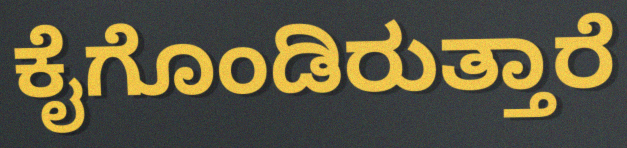
ಕೈಗೊಂಡಿರುತ್ತಾರೆ